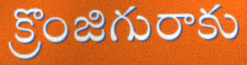
క్రొంజిగురాకు